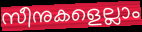
സീനുകളെല്ലാം